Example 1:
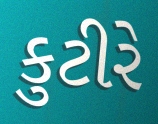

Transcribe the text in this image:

કુટીરે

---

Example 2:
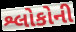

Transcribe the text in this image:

શ્લોકોની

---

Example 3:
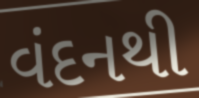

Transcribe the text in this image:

વંદનથી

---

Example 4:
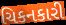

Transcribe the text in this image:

ચિકનકારી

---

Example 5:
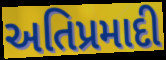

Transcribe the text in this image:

અતિપ્રમાદી